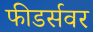
फीडर्सवर